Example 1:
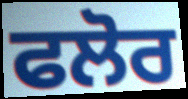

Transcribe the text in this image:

ਫਲੋਰ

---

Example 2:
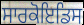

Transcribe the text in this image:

ਸਾਰਕੋਇਡਿਸ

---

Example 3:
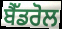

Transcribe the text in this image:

ਬੈੱਡਰੋਲ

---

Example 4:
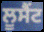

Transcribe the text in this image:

ਲੂਸੈਂਟ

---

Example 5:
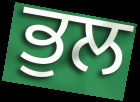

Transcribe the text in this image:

ਭੁਲ